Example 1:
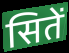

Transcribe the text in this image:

सितें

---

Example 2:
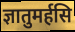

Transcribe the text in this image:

ज्ञातुमर्हसि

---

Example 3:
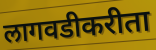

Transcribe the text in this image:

लागवडीकरीता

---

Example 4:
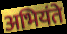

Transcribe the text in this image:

अभियंते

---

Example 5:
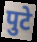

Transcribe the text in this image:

पुटे